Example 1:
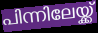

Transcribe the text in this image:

പിന്നിലേയ്ക്ക്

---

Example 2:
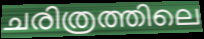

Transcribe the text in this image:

ചരിത്രത്തിലെ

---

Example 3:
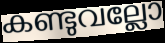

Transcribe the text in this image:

കണ്ടുവല്ലോ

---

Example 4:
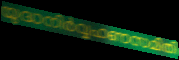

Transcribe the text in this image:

യുദ്ധനിർവ്വഹണസമിതി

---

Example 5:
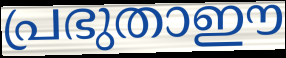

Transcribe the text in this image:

പ്രഭുതാഈ